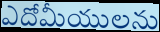
ఎదోమీయులను